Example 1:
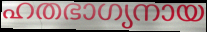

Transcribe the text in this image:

ഹതഭാഗ്യനായ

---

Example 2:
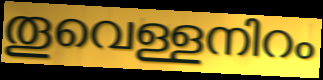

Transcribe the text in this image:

തൂവെള്ളനിറം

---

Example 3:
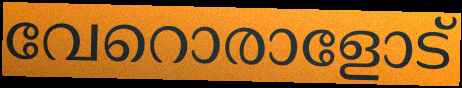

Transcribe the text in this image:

വേറൊരാളോട്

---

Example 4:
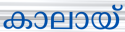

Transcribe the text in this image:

കാലായ്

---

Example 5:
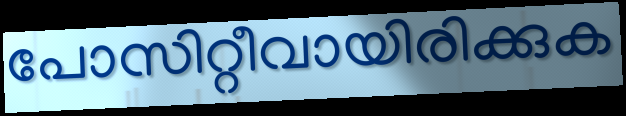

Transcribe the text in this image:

പോസിറ്റീവായിരിക്കുക